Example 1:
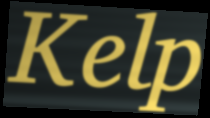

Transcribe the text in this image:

Kelp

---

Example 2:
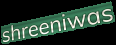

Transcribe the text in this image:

shreeniwas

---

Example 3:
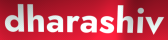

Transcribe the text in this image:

dharashiv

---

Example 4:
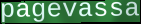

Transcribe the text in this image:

pagevassa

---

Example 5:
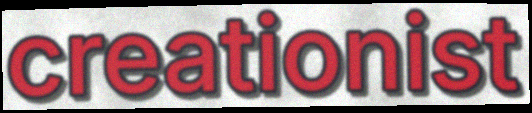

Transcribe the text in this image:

creationist